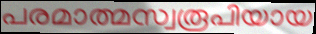
പരമാത്മസ്വരൂപിയായ